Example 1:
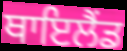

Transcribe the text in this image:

ਥਾਇਲੈਂਡ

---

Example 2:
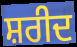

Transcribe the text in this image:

ਸ਼ਰੀਦ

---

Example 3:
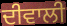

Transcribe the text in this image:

ਦੀਵਾਲੀ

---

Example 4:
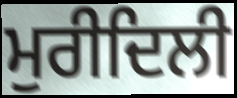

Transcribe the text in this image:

ਮੁਰੀਦਿਲੀ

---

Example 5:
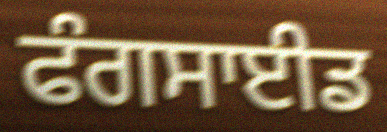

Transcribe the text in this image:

ਫੰਗਸਾਈਡ